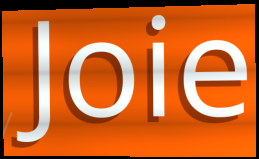
Joie